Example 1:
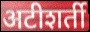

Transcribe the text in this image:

अटीशर्ती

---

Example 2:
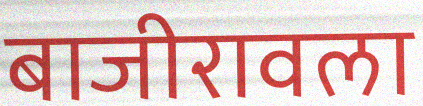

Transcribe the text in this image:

बाजीरावला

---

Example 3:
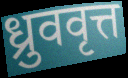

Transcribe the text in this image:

ध्रुववृत्त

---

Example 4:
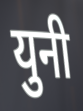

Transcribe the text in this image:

युनी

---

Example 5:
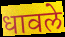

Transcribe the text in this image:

धावले